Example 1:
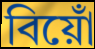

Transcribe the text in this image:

বিয়োঁ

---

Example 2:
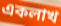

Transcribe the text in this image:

একলাখ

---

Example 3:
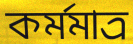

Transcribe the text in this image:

কর্মমাত্র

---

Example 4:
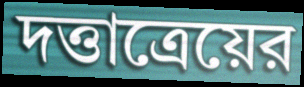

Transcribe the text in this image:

দত্তাত্রেয়ের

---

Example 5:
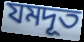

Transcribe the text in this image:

যমদূত